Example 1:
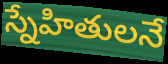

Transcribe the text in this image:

స్నేహితులనే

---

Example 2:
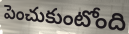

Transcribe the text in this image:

పెంచుకుంటోంది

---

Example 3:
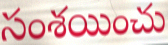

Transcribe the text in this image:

సంశయించు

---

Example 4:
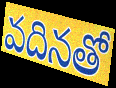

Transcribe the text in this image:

వదినతో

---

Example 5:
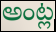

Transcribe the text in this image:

అంట్ల